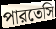
পারতেসি